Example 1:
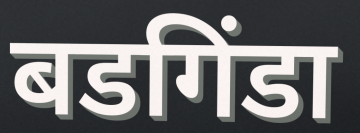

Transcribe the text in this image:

बडगिंडा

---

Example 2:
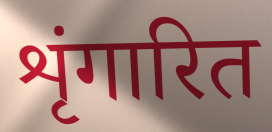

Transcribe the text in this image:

शृंगारित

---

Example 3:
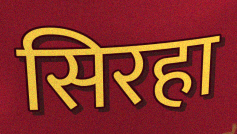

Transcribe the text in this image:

सिरहा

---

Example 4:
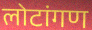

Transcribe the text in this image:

लोटांगण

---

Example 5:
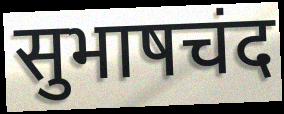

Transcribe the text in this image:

सुभाषचंद